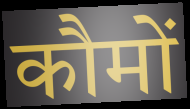
कौमों